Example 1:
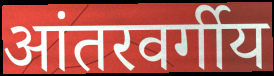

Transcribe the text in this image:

आंतरवर्गीय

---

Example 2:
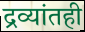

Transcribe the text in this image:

द्रव्यांतही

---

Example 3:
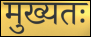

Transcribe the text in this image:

मुख्यतः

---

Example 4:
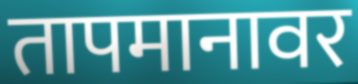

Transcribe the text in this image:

तापमानावर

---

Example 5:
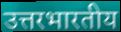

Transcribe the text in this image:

उत्तरभारतीय